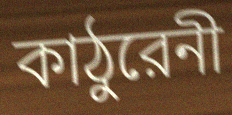
কাঠুরেনী